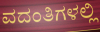
ವದಂತಿಗಳಲ್ಲಿ